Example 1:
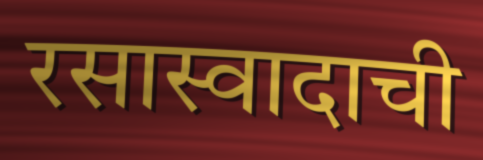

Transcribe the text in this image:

रसास्वादाची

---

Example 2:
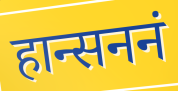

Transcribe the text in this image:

हान्सननं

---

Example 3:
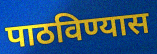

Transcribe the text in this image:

पाठविण्यास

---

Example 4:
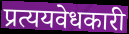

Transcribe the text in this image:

प्रत्ययवेधकारी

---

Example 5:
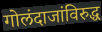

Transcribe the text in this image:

गोलंदाजांविरुद्ध